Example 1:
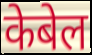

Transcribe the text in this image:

केबेल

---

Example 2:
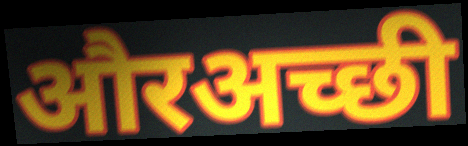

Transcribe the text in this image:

औरअच्छी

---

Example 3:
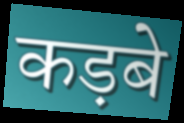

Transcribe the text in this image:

कड़बे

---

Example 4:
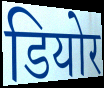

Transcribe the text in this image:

डियोर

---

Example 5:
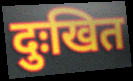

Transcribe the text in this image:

दुःखित